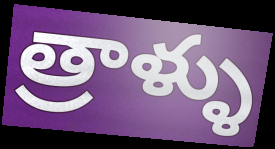
త్రాళ్ళు